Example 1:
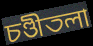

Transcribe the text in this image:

চণ্ডীতলা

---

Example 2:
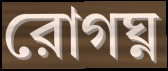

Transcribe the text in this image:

রোগঘ্ন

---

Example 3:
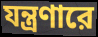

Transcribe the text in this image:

যন্ত্রণারে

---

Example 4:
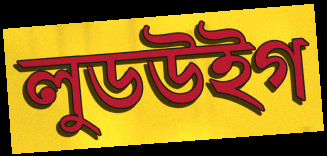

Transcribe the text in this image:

লুডউইগ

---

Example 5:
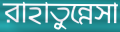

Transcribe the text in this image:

রাহাতুন্নেসা